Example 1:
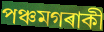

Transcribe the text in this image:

পঞ্চমগৰাকী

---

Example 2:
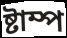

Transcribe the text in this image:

ষ্টাম্প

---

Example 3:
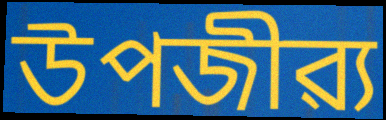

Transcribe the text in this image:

উপজীৱ্য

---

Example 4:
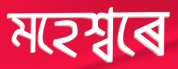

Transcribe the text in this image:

মহেশ্বৰে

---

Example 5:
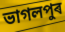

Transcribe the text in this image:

ভাগলপুৰ